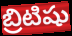
బ్రిటిషు